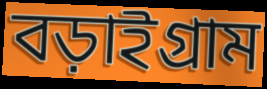
বড়াইগ্রাম